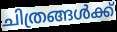
ചിത്രങ്ങൾക്ക്